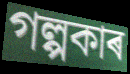
গল্পকাৰ